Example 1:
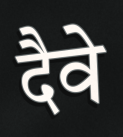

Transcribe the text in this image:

दैवे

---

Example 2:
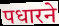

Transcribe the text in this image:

पधारने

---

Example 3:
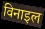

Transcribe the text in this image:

विनाइल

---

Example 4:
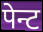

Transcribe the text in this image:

पेन्ट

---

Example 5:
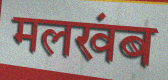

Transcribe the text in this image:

मलखंब